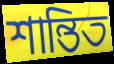
শান্তিত